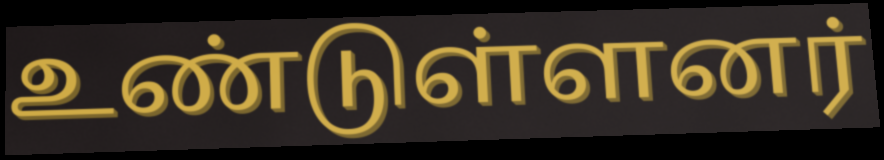
உண்டுள்ளனர்